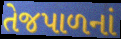
તેજપાળનાં